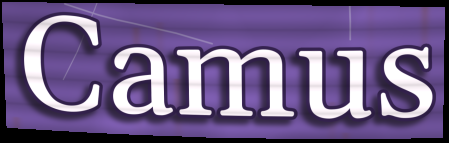
Camus